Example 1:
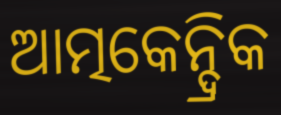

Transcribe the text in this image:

ଆତ୍ମକେନ୍ଦ୍ରିକ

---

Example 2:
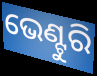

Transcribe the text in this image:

ଭେଣ୍ଟୁରି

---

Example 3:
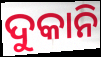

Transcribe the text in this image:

ଦୁକାନି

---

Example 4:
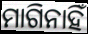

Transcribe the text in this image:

ମାଗିନାହିଁ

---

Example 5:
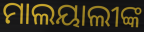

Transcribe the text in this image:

ମାଲୟାଲୀଙ୍କ